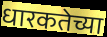
धारकतेच्या